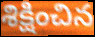
శిక్షించిన